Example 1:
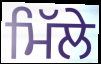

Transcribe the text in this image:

ਮਿੱਲੇ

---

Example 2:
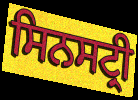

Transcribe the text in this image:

ਸਿਨਸਟ੍ਰੀ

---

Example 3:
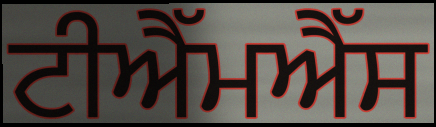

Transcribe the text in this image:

ਟੀਐੱਮਐੱਸ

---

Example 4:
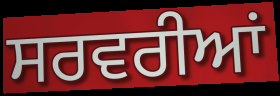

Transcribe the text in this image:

ਸਰਵਰੀਆਂ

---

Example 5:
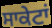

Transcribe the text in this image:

ਸਾਕੇਟਾਂ